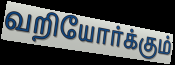
வறியோர்க்கும்